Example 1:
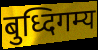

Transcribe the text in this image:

बुध्दिगम्य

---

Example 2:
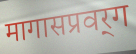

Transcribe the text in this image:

मागासप्रवर्ग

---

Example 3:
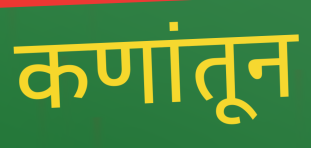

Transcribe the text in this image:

कणांतून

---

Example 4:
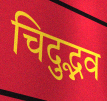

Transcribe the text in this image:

चिदुद्भव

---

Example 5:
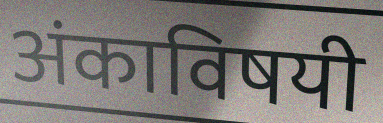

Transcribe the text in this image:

अंकाविषयी